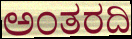
ಅಂತರದಿ